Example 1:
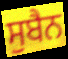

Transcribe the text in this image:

ਸੁਬੈਨ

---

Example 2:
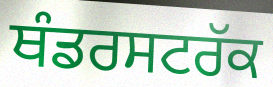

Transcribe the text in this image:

ਥੰਡਰਸਟਰੱਕ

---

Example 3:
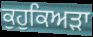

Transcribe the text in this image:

ਕੁਹੁਕਿਅੜਾ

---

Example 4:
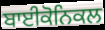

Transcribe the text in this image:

ਬਾਈਕੋਨਿਕਲ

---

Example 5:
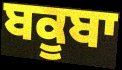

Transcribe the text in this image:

ਬਕੂਬਾ